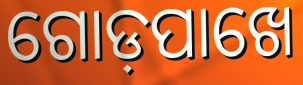
ଗୋଡ଼ପାଖେ